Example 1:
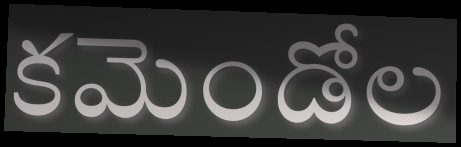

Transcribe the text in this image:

కమెండోల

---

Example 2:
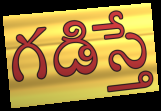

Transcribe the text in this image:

గడిస్తే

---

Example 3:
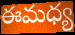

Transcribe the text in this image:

ఈమధ్య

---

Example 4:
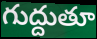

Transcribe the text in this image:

గుద్దుతూ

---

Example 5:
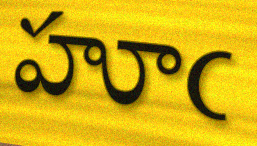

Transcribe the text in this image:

హూఁ